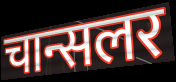
चान्सलर